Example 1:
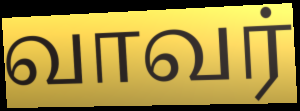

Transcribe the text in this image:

வாவர்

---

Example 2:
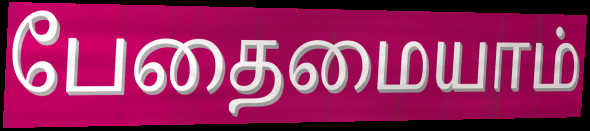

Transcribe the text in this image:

பேதைமையாம்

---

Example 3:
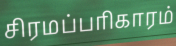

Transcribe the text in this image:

சிரமப்பரிகாரம்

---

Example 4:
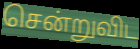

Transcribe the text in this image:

சென்றுவிட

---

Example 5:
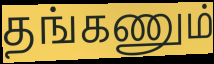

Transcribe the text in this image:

தங்கணும்